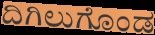
ದಿಗಿಲುಗೊಂಡ